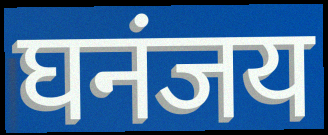
घनंजय